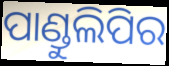
ପାଣ୍ଡୁଲିପିର